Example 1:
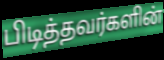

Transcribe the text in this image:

பிடித்தவர்களின்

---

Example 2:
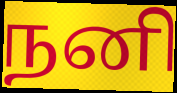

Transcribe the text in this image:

நனி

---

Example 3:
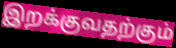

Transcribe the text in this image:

இறக்குவதற்கும்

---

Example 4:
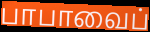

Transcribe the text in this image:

பாபாவைப்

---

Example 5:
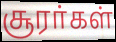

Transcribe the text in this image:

சூரர்கள்